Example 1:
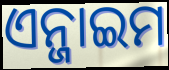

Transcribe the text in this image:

ଏନ୍ଜାଇମ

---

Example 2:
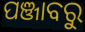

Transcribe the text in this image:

ପଞ୍ଜାବରୁ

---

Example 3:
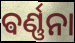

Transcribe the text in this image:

ଵର୍ଣ୍ଣନା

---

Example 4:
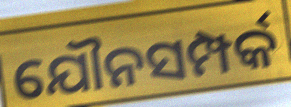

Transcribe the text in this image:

ଯୌନସମ୍ପର୍କ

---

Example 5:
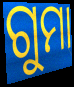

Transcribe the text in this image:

ଗୁମା